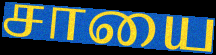
சாயை